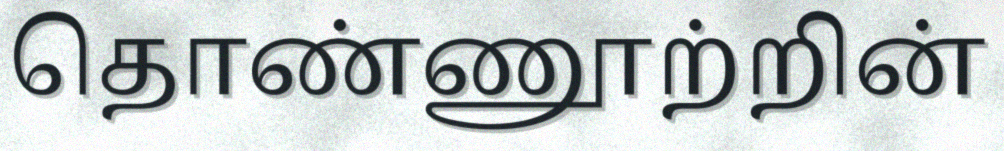
தொண்ணூற்றின்